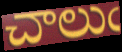
చాలుఁ